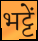
भट्टें